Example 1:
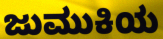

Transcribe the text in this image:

ಜುಮುಕಿಯ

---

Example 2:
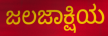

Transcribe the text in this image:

ಜಲಜಾಕ್ಷಿಯ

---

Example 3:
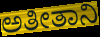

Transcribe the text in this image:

ಅತೀತಾನಿ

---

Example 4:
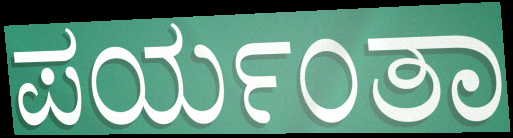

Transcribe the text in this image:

ಪರ್ಯಂತಾ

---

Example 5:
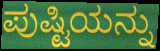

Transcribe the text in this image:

ಪುಷ್ಟಿಯನ್ನು